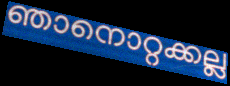
ഞാനൊറ്റക്കല്ല